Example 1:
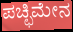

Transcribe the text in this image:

ಪಚ್ಛಿಮೇನ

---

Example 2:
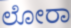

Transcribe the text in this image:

ಲೋರಾ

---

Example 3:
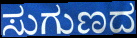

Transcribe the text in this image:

ಸುಗುಣದ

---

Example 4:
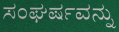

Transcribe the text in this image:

ಸಂಘರ್ಷವನ್ನು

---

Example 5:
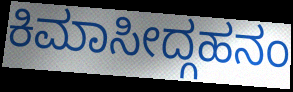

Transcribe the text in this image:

ಕಿಮಾಸೀದ್ಗಹನಂ